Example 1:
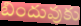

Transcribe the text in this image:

బిందువుకు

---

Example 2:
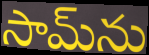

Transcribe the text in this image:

సామ్‌ను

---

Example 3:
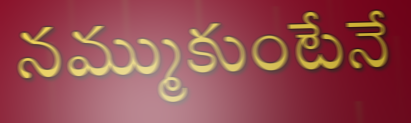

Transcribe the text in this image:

నమ్ముకుంటేనే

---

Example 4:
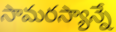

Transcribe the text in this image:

సామరస్యాన్నే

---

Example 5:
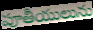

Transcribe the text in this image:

పూతీయులును